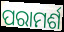
ପରାମର୍ଶ